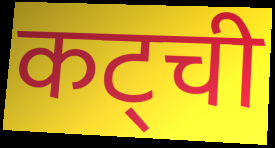
कट्ची